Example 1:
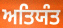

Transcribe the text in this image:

ਅਤਿਯੰਤ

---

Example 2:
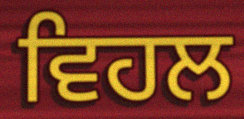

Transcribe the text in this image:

ਵਿਹਲ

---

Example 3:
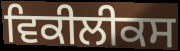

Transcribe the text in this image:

ਵਿਕੀਲੀਕਸ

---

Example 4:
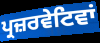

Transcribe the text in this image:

ਪ੍ਰਜ਼ਰਵੇਟਿਵਾਂ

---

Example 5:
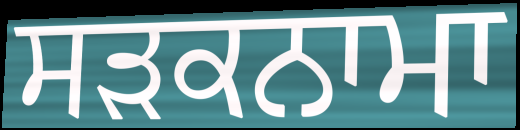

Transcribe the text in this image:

ਸਡ਼ਕਨਾਮਾ